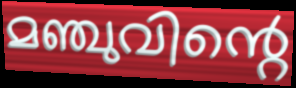
മഞ്ചുവിന്റെ